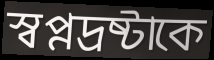
স্বপ্নদ্রষ্টাকে